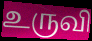
உருவி